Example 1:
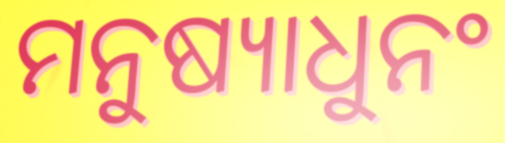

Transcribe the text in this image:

ମନୁଷ୍ୟାଧୁନଂ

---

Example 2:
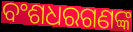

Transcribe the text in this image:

ବଂଶଧରଗଣଙ୍କ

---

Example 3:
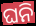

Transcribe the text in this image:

ଘନି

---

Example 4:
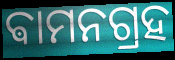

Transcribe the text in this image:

ଵାମନଗ୍ରହ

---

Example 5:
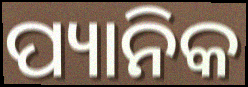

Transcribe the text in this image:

ପ୍ୟାନିକ